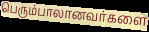
பெரும்பாலானவர்களை